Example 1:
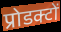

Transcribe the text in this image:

प्रोडक्टों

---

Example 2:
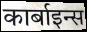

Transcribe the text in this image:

कार्बाइन्स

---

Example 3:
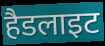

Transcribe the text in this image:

हैडलाइट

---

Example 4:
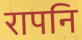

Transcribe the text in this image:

रापनि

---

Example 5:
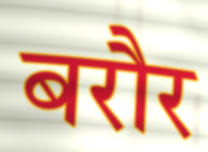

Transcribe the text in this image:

बरौर